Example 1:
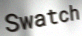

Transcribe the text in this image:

Swatch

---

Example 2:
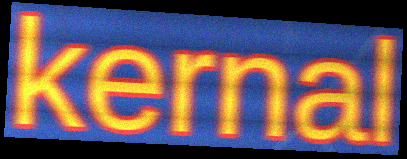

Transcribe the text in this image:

kernal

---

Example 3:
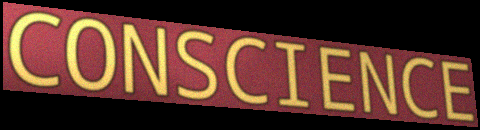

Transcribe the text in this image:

CONSCIENCE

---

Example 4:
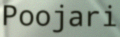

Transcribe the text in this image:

Poojari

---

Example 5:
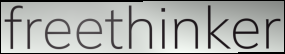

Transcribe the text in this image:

freethinker